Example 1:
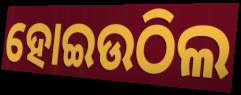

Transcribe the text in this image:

ହୋଇଉଠିଲ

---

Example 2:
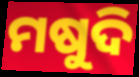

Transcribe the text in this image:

ମଷୁଦି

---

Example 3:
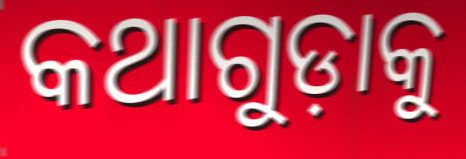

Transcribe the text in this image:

କଥାଗୁଡ଼ାକୁ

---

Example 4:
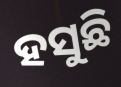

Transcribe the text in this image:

ହସୁଛି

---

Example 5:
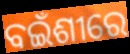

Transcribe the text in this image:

ବଇଁଶୀରେ